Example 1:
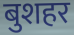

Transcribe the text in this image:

बुशहर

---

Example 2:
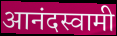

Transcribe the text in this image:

आनंदस्वामी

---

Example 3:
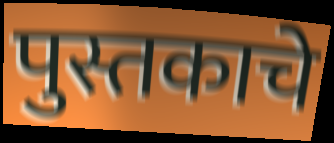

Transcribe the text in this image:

पुस्तकाचे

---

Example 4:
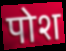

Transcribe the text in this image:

पोश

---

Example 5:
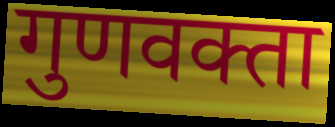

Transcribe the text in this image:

गुणवक्ता